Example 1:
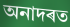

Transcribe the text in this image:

অনাদৰত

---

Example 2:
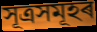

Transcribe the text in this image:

সূত্ৰসমূহৰ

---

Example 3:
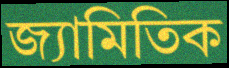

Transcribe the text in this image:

জ্যামিতিক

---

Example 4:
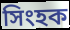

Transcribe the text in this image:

সিংহক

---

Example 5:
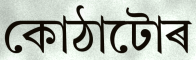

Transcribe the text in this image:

কোঠাটোৰ